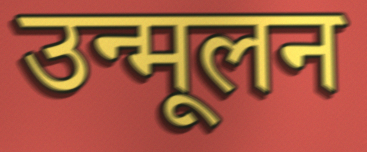
उन्मूलन